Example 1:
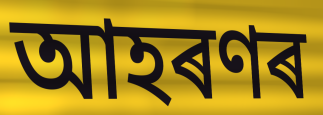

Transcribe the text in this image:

আহৰণৰ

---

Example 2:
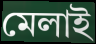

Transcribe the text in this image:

মেলাই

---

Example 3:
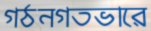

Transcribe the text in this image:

গঠনগতভাৱে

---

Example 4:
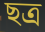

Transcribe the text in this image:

ছত্ৰ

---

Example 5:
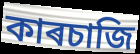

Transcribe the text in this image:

কাৰচাজি